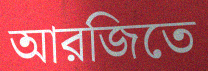
আরজিতে